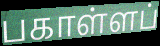
பகாள்ளப்